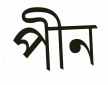
পীন